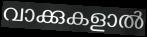
വാക്കുകളാൽ